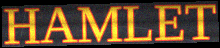
HAMLET